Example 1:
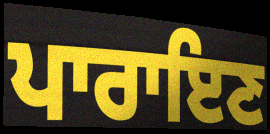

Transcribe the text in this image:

ਪਾਰਾਇਣ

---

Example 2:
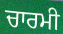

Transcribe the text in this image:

ਚਾਰਮੀ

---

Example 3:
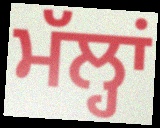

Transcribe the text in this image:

ਮੱਲ੍ਹਾਂ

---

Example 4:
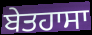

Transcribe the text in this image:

ਬੇਤਹਾਸਾ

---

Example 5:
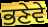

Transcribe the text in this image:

ਭਣੇਵੇ